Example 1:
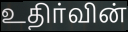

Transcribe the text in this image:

உதிர்வின்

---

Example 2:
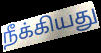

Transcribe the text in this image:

நீக்கியது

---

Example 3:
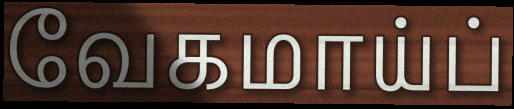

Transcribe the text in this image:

வேகமாய்ப்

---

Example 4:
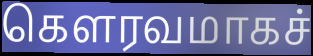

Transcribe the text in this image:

கௌரவமாகச்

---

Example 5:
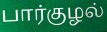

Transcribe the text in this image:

பார்குழல்